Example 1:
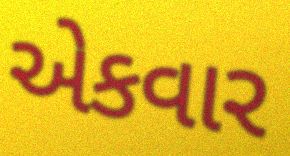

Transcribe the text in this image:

એકવાર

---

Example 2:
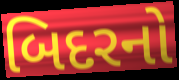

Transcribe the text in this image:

બિદરનો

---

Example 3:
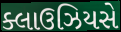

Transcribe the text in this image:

ક્લાઉઝિયસે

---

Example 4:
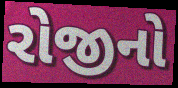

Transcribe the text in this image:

રોજીનો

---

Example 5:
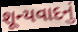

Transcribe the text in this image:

શૂન્યવાદનું